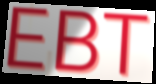
EBT